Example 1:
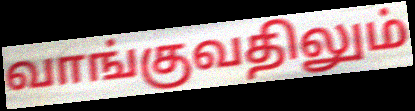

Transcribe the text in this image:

வாங்குவதிலும்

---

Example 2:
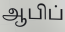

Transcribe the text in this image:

ஆபிப்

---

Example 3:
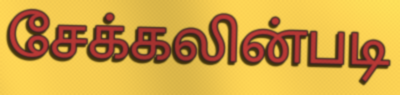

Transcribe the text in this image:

சேக்கலின்படி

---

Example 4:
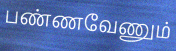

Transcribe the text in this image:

பண்ணவேணும்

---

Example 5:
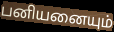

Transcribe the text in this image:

பனியனையும்